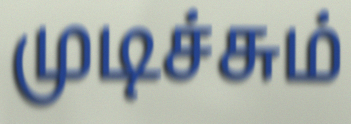
முடிச்சும்